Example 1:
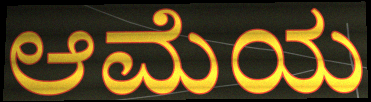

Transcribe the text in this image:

ಆಮೆಯ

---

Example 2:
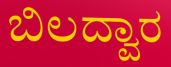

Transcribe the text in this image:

ಬಿಲದ್ವಾರ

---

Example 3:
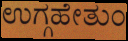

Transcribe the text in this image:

ಉಗ್ಗಹೇತುಂ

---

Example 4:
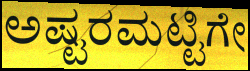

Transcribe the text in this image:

ಅಷ್ಟರಮಟ್ಟಿಗೇ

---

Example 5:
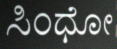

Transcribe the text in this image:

ಸಿಂಧೋ